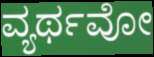
ವ್ಯರ್ಥವೋ